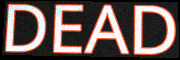
DEAD